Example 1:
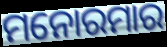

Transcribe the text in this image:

ମନୋରମାର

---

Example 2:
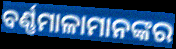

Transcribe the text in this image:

ବର୍ଣ୍ଣମାଳାମାନଙ୍କର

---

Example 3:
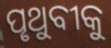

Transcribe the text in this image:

ପୃଥୁବୀକୁ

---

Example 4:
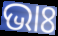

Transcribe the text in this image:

ଭାଃ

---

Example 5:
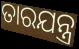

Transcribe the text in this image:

ତାରଯନ୍ତ୍ର